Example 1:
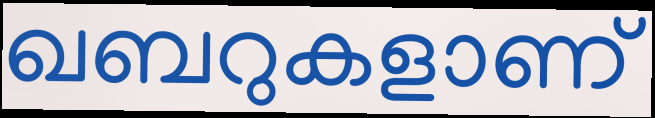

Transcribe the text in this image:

ഖബറുകളാണ്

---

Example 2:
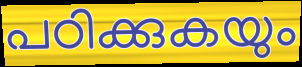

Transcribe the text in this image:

പഠിക്കുകയും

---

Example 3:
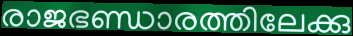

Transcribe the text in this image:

രാജഭണ്ഡാരത്തിലേക്കു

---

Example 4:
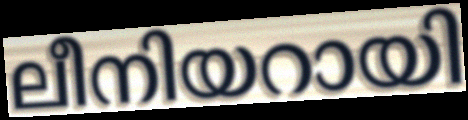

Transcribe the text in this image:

ലീനിയറായി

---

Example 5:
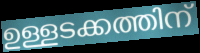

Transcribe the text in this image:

ഉള്ളടക്കത്തിന്